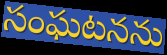
సంఘటనను